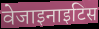
वेजाइनाइटिस